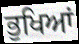
ਭੁਖਿਆਂ